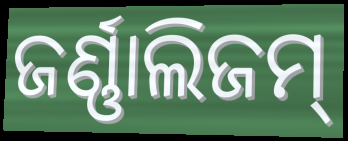
ଜର୍ଣ୍ଣାଲିଜମ୍